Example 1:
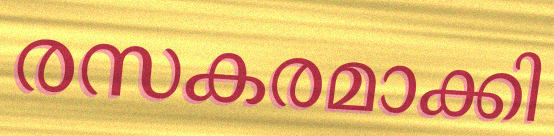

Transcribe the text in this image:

രസകരമാക്കി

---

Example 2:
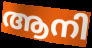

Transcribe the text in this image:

ആനി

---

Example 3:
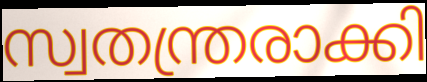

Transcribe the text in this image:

സ്വതന്ത്രരാക്കി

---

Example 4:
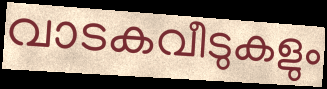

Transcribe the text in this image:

വാടകവീടുകളും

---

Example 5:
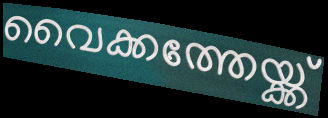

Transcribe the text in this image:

വൈക്കത്തേയ്ക്ക്